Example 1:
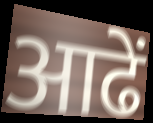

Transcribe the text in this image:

आढें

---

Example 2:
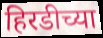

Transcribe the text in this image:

हिरडीच्या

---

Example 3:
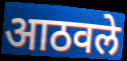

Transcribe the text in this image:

आठवले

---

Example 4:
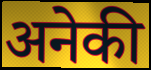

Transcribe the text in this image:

अनेकी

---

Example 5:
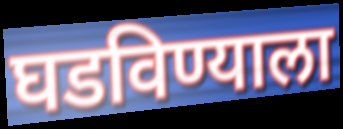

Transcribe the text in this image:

घडविण्याला